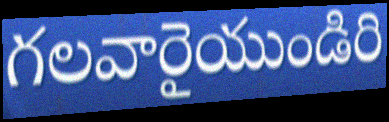
గలవారైయుండిరి